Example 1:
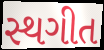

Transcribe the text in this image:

સ્થગીત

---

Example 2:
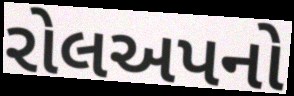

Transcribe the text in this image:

રોલઅપનો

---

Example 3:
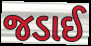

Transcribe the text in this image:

જડાઈ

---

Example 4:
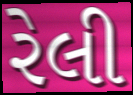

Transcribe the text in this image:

રેલી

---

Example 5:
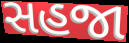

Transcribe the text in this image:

સહજા